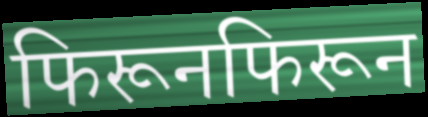
फिरूनफिरून